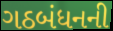
ગઠબંધનની